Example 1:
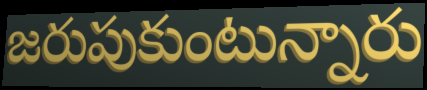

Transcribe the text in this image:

జరుపుకుంటున్నారు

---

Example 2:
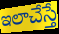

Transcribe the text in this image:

ఇలాచేస్తే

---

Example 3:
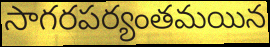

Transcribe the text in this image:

సాగరపర్యంతమయిన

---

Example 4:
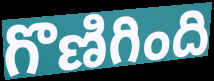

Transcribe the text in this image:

గొణిగింది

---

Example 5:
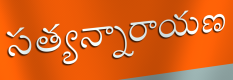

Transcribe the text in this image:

సత్యన్నారాయణ